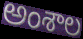
అంశాల